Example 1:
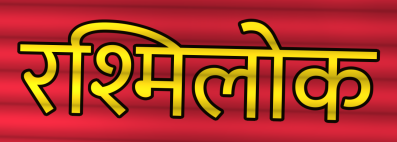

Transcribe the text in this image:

रश्मिलोक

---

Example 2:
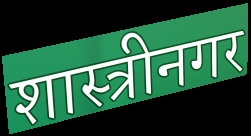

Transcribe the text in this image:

शास्त्रीनगर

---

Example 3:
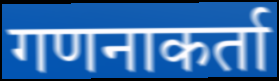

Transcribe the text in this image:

गणनाकर्ता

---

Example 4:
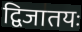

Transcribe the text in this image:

द्विजातयः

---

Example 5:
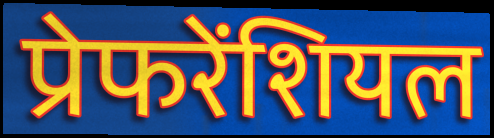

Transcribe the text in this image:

प्रेफरेंशियल